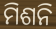
ମିଶନି